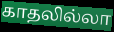
காதலில்லா